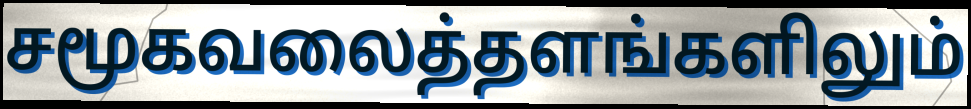
சமூகவலைத்தளங்களிலும்